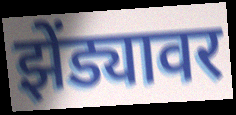
झेंड्यावर